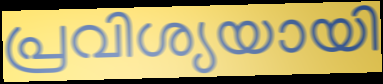
പ്രവിശ്യയായി